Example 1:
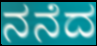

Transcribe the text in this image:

ನನೆದ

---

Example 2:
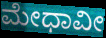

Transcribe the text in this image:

ಮೇಧಾವೀ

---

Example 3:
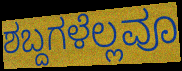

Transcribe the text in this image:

ಶಬ್ದಗಳೆಲ್ಲವೂ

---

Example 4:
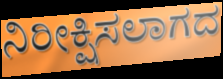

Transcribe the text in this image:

ನಿರೀಕ್ಷಿಸಲಾಗದ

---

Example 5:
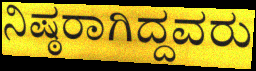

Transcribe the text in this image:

ನಿಷ್ಠರಾಗಿದ್ದವರು